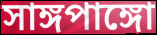
সাঙ্গপাঙ্গো